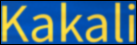
Kakali